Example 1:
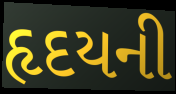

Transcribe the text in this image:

હૃદયની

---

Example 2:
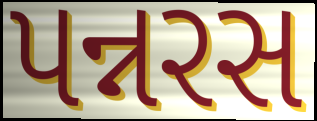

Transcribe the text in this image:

પન્નરસ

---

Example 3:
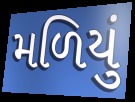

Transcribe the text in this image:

મળિયું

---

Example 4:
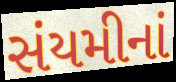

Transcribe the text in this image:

સંયમીનાં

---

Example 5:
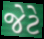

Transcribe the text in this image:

જેટે